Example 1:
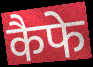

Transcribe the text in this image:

कैफे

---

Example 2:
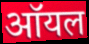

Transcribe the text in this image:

ऑयल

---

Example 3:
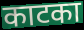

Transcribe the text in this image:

काटका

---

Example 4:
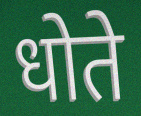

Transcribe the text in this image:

धोते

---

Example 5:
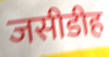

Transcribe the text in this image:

जसीडीह